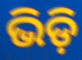
ଭିଡ଼ି